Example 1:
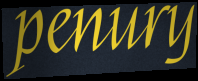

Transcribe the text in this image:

penury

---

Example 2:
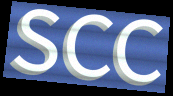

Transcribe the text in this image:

SCC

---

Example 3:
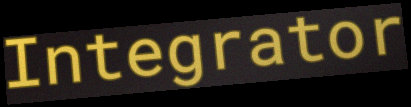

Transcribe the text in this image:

Integrator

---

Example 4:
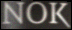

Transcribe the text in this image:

NOK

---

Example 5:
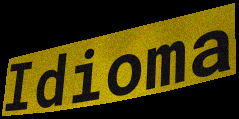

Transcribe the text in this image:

Idioma